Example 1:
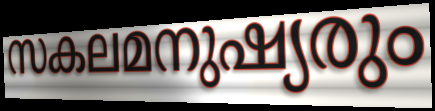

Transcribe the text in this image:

സകലമനുഷ്യരും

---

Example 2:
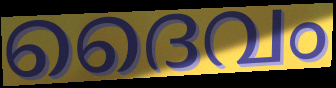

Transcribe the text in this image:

ദൈവം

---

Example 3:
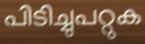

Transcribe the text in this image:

പിടിച്ചുപറ്റുക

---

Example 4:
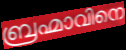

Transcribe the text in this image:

ബ്രഹ്മാവിനെ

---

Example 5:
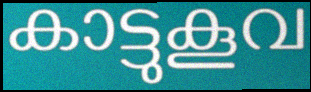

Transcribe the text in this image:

കാട്ടുകൂവ